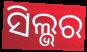
ସିଲ୍ଭର